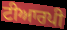
ਟੀਆਰਪੀ